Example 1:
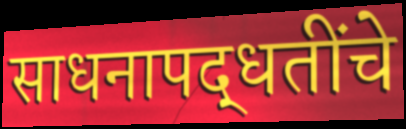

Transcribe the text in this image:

साधनापद्धतींचे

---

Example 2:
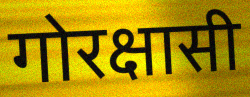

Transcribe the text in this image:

गोरक्षासी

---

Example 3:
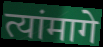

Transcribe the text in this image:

त्यांमागे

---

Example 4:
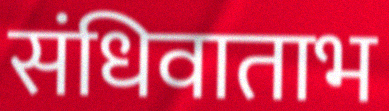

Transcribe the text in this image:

संधिवाताभ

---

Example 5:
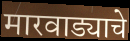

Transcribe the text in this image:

मारवाड्याचे